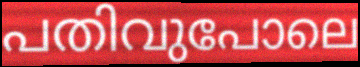
പതിവുപോലെ